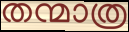
തന്മാത്ര